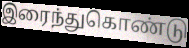
இரைந்துகொண்டு